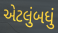
એટલુંબધું